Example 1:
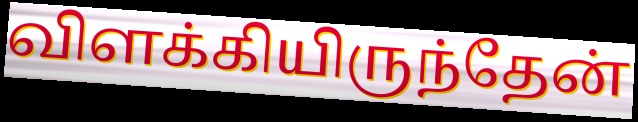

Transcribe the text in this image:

விளக்கியிருந்தேன்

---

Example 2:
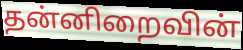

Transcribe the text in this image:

தன்னிறைவின்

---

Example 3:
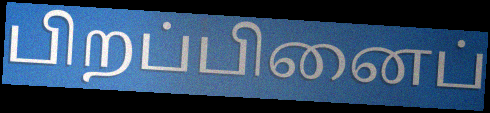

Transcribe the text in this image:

பிறப்பினைப்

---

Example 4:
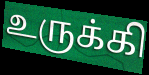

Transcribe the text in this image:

உருக்கி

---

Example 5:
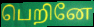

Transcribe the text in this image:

பெறினே